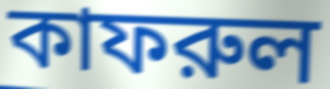
কাফরুল